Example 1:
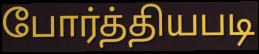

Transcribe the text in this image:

போர்த்தியபடி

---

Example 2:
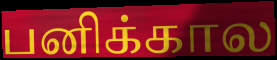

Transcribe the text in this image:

பனிக்கால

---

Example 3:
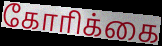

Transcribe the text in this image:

கோரிக்கை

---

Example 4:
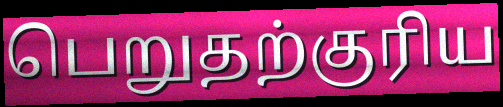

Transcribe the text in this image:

பெறுதற்குரிய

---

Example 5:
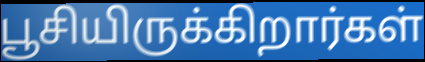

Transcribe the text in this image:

பூசியிருக்கிறார்கள்